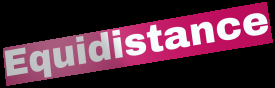
Equidistance